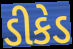
ડીકેડ